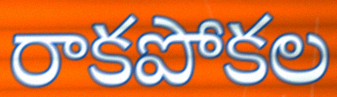
రాకపోకల